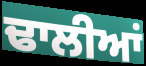
ਢਾਲੀਆਂ